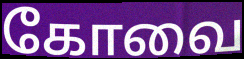
கோவை